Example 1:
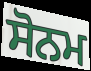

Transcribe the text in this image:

ਸੋਨਮ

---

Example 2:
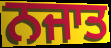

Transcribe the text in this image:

ਨਜਾਤ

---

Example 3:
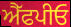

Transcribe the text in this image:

ਐੱਫਪੀਓ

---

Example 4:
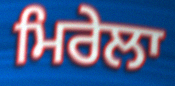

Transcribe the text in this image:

ਮਿਰੇਲਾ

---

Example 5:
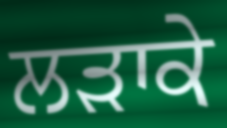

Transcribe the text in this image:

ਲੜਾਕੇ